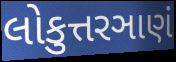
લોકુત્તરઞાણં